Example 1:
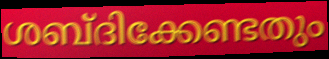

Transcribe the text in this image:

ശബ്ദിക്കേണ്ടതും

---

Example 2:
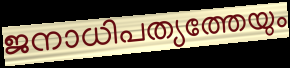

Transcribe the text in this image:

ജനാധിപത്യത്തേയും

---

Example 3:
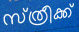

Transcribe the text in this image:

സ്‌ത്രീക്ക്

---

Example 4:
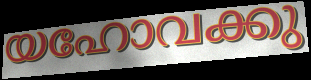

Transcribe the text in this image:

യഹോവക്കു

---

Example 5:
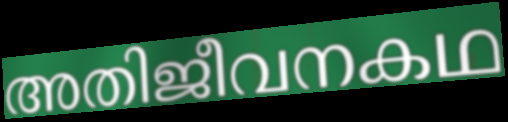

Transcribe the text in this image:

അതിജീവനകഥ